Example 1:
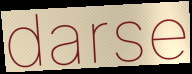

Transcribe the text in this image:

darse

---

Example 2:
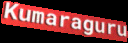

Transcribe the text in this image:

Kumaraguru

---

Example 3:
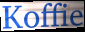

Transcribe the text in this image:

Koffie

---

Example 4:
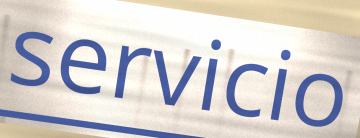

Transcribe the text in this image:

servicio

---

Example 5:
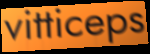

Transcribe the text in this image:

vitticeps